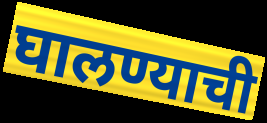
घालण्याची